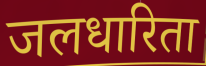
जलधारिता